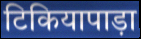
टिकियापाड़ा